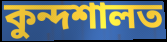
কুন্দশালত